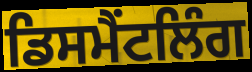
ਡਿਸਮੈਂਟਲਿੰਗ